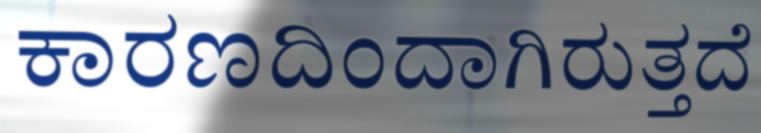
ಕಾರಣದಿಂದಾಗಿರುತ್ತದೆ